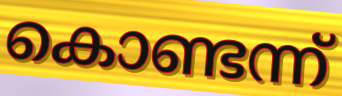
കൊണ്ടന്ന്